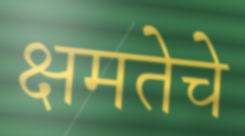
क्षमतेचे